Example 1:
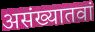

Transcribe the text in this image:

असंख्यातवां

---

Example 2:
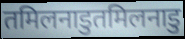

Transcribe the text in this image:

तमिलनाडुतमिलनाडु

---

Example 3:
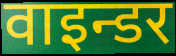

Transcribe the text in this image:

वाइन्डर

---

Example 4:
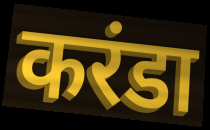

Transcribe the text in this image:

करंडा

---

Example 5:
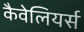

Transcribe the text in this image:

कैवेलियर्स